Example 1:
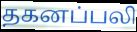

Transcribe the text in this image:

தகனப்பலி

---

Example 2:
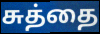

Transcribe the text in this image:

சுத்தை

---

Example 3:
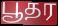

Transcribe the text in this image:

பூதர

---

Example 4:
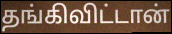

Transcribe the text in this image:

தங்கிவிட்டான்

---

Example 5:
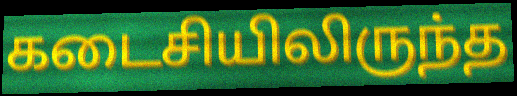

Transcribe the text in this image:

கடைசியிலிருந்த